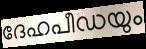
ദേഹപീഡയും